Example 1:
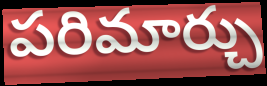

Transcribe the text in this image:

పరిమార్చు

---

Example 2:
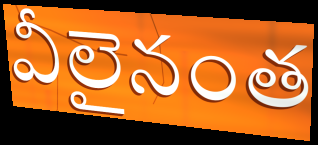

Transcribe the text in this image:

వీలైనంత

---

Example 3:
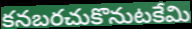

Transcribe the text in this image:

కనబరచుకొనుటకేమి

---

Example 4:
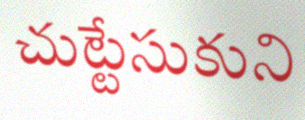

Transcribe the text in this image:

చుట్టేసుకుని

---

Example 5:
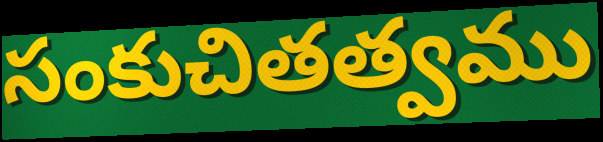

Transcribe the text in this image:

సంకుచితత్వము